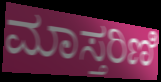
ಮಾಸ್ತರಿಣಿ